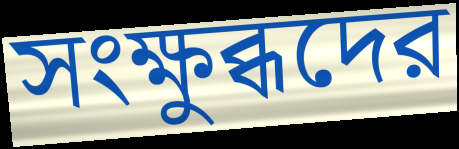
সংক্ষুব্ধদের